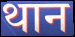
थान